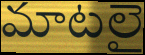
మాటలై